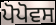
ਪੋਪੋਵਸ